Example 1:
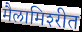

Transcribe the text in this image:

मैलामिश्रीत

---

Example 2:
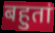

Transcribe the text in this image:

बहुतां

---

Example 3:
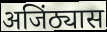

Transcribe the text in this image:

अजिंठ्यास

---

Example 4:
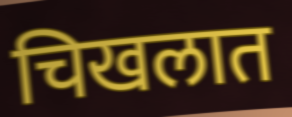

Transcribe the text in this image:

चिखलात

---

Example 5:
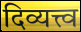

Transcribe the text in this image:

दिव्यत्त्व